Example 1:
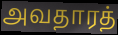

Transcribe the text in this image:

அவதாரத்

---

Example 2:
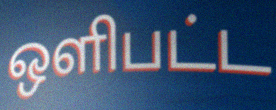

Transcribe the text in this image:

ஒளிபட்ட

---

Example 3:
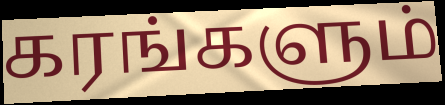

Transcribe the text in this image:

கரங்களும்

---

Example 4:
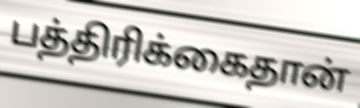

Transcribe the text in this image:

பத்திரிக்கைதான்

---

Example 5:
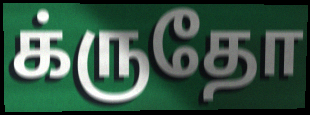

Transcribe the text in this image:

க்ருதோ